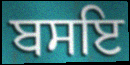
ਬਸਇ